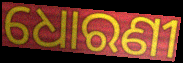
ଧୋରଣୀ